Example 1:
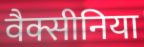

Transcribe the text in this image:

वैक्सीनिया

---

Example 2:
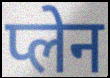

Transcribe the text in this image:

प्लेन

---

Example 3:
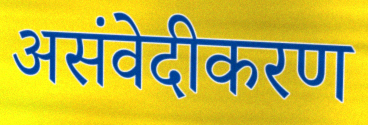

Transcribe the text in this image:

असंवेदीकरण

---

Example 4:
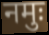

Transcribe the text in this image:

नमुः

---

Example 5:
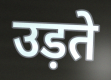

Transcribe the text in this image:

उड़ते